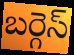
బర్గెస్